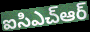
ఐసిఎచ్ఆర్